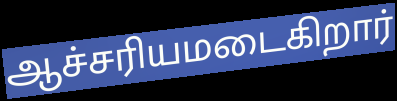
ஆச்சரியமடைகிறார்